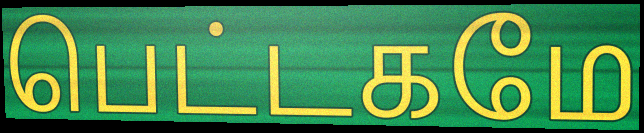
பெட்டகமே